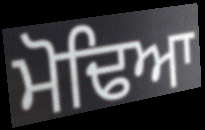
ਮੋਢਿਆ